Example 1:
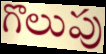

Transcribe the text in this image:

గొలుపు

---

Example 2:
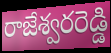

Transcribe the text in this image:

రాజేశ్వరరెడ్డి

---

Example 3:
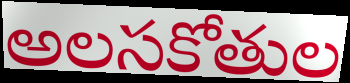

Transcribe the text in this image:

అలసకోతుల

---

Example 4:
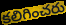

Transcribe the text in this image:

కలిగించరు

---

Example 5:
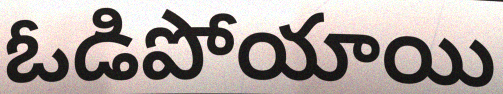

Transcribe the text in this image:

ఓడిపోయాయి